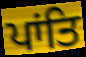
ਪਾਂਤਿ